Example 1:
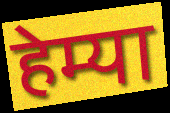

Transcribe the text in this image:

हेम्या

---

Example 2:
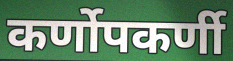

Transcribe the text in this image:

कर्णोपकर्णी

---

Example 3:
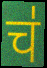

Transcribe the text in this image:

च॑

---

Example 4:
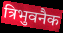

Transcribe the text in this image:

त्रिभुवनैक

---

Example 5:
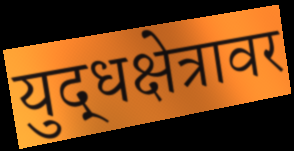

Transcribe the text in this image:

युद्धक्षेत्रावर